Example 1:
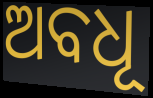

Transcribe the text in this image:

ଅବଧୂ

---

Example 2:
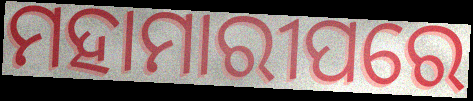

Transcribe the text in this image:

ମହାମାରୀପରେ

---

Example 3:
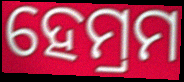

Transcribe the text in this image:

ହେମ୍ରମ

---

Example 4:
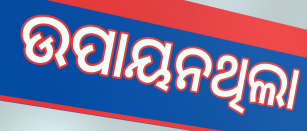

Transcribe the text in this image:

ଉପାୟନଥିଲା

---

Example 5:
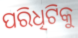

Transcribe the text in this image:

ପରିଧିଟିକୁ